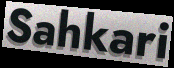
Sahkari